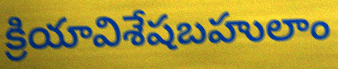
క్రియావిశేషబహులాం